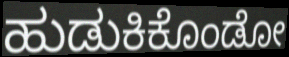
ಹುಡುಕಿಕೊಂಡೋ